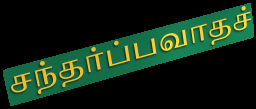
சந்தர்ப்பவாதச்